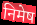
निमेष